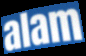
alam